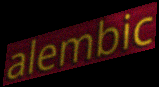
alembic